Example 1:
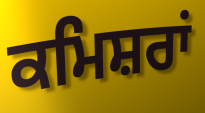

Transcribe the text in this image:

ਕਮਿਸ਼ਰਾਂ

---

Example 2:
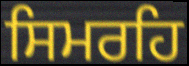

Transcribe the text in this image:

ਸਿਮਰਹਿ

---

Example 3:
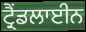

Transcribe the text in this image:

ਟ੍ਰੈਂਡਲਾਈਨ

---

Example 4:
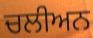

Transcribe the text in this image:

ਚਲੀਅਨ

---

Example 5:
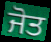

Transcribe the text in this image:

ਜੋਤ